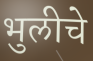
भुलीचे